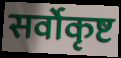
सर्वोकृष्ट